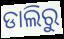
ଡାଲିରୁ